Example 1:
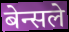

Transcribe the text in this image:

बेन्सले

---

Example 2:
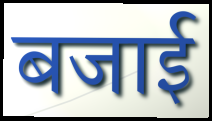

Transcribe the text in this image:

बजाई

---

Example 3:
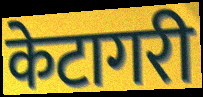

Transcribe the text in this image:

केटागरी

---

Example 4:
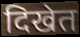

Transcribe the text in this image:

दिखेत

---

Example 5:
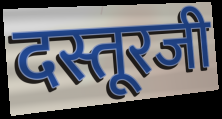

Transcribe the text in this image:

दस्तूरजी